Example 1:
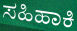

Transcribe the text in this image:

ಸಹಿಹಾಕಿ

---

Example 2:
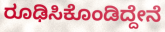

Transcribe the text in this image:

ರೂಢಿಸಿಕೊಂಡಿದ್ದೇನೆ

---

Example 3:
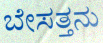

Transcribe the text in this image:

ಬೇಸತ್ತನು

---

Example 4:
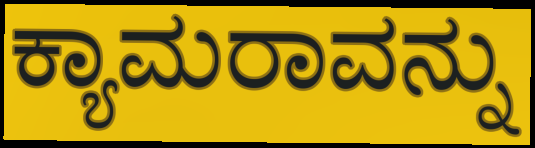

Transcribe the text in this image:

ಕ್ಯಾಮರಾವನ್ನು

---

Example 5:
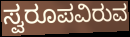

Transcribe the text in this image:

ಸ್ವರೂಪವಿರುವ